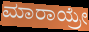
ಮಾರಾಯ್ರೇ